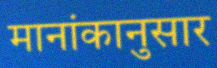
मानांकानुसार